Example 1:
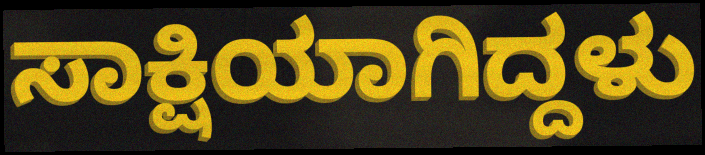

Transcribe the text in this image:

ಸಾಕ್ಷಿಯಾಗಿದ್ದಳು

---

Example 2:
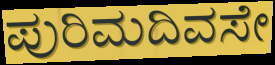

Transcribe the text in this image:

ಪುರಿಮದಿವಸೇ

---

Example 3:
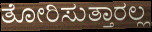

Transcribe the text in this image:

ತೋರಿಸುತ್ತಾರಲ್ಲ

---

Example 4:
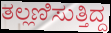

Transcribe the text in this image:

ತಲ್ಲಣಿಸುತ್ತಿದ್ದ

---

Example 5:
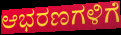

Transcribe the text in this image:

ಆಭರಣಗಳಿಗೆ